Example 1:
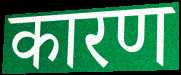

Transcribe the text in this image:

कारण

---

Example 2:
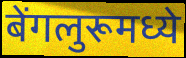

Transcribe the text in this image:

बेंगलुरूमध्ये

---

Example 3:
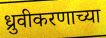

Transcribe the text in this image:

ध्रुवीकरणाच्या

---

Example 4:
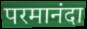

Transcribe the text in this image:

परमानंदा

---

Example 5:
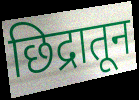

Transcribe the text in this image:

छिद्रातून